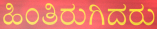
ಹಿಂತಿರುಗಿದರು